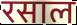
रसाल